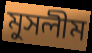
মুসলীম